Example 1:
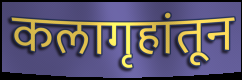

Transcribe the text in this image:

कलागृहांतून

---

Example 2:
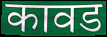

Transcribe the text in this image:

कावड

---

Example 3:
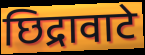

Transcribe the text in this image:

छिद्रावाटे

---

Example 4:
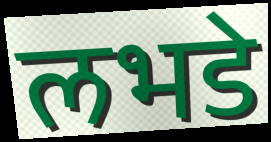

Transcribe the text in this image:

लभडे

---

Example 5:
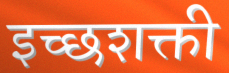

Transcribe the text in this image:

इच्छशक्ती